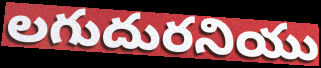
లగుదురనియు